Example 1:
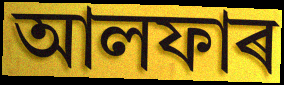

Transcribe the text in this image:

আলফাৰ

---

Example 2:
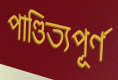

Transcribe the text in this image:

পাণ্ডিত্যপূৰ্ণ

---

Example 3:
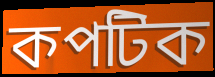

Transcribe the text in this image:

কপটিক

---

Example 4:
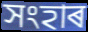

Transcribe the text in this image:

সংহাৰ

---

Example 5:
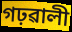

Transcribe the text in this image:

গঢ়ৱালী